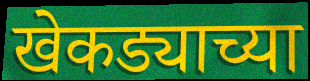
खेकड्याच्या